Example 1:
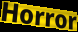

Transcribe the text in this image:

Horror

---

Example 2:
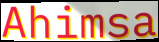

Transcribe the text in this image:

Ahimsa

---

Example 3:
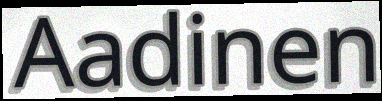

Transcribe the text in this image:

Aadinen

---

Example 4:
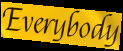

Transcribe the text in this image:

Everybody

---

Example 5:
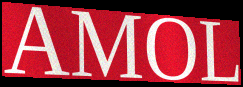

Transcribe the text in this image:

AMOL